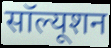
सॉल्यूशन